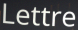
Lettre